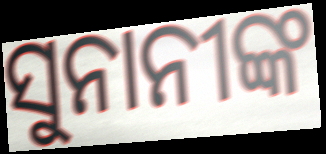
ସୁନାନୀଙ୍କ